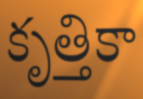
కృత్తికా